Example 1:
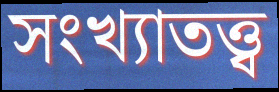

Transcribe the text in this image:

সংখ্যাতত্ত্ব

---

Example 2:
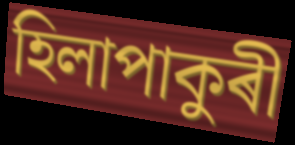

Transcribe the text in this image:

হিলাপাকুৰী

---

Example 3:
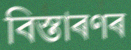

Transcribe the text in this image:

বিস্তাৰণৰ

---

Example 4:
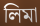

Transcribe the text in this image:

লিমা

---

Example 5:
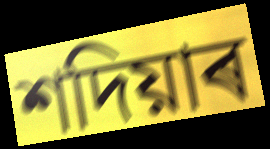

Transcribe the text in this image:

শদিয়াৰ